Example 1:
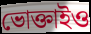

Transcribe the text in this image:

ভোক্তাইও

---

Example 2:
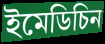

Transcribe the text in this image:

ইমেডিচিন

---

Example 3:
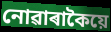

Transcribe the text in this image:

নোৱাৰাকৈয়ে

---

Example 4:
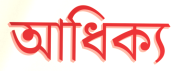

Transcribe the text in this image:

আধিক্য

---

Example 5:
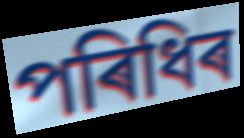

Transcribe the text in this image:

পৰিধিৰ